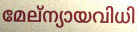
മേല്ന്യായവിധി